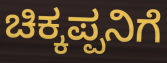
ಚಿಕ್ಕಪ್ಪನಿಗೆ